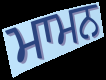
ਮਾਮਨ